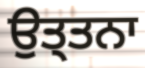
ਉਤ੍ਤਨਾ